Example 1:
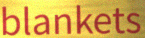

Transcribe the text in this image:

blankets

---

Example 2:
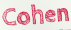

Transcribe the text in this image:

Cohen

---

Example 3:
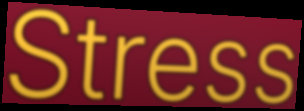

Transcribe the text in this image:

Stress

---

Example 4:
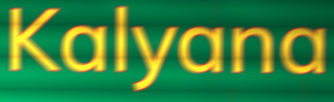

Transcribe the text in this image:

Kalyana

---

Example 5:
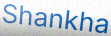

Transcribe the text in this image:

Shankha